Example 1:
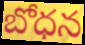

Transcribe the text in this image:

బోధన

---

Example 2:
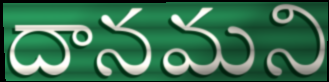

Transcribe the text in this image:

దానమని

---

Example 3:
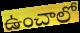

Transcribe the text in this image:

ఉంచాలో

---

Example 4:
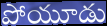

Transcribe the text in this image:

పోయూడు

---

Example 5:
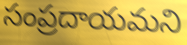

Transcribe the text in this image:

సంప్రదాయమని